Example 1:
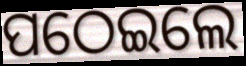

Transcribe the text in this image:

ପଠେଇଲେ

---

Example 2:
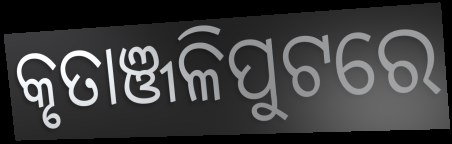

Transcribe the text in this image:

କୃତାଞ୍ଜଳିପୁଟରେ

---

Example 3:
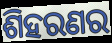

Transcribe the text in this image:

ଶିହରଣର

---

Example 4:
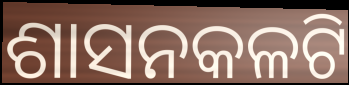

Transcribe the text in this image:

ଶାସନକଳଟି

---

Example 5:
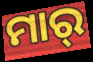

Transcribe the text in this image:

ମାର୍